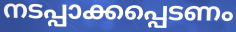
നടപ്പാക്കപ്പെടണം